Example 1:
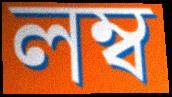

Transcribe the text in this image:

লম্ব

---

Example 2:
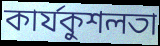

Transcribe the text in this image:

কাৰ্যকুশলতা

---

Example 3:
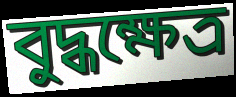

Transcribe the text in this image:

বুদ্ধক্ষেত্ৰ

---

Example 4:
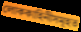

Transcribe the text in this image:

লোককাহিনীসমূহত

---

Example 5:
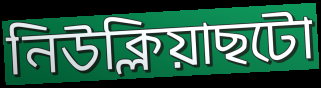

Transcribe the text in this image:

নিউক্লিয়াছটো